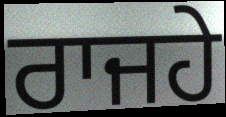
ਰਾਜਹੇ